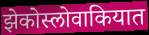
झेकोस्लोवाकियात